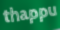
thappu